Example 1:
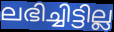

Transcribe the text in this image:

ലഭിച്ചിട്ടില്ല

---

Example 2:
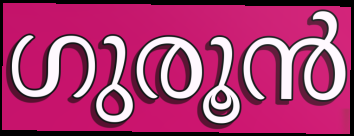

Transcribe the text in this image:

ഗുരൂൻ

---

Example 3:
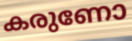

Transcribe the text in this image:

കരുണോ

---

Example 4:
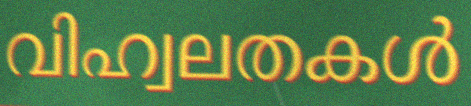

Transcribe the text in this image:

വിഹ്വലതകൾ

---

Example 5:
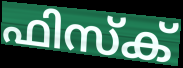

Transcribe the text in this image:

ഫിസ്ക്